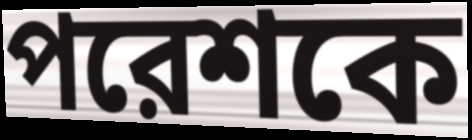
পরেশকে